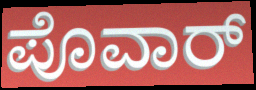
ಪೊವಾರ್